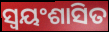
ସ୍ବୟଂଶାସିତ